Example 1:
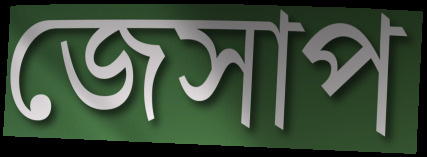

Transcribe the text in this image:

জেসাপ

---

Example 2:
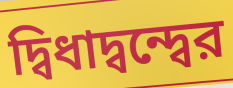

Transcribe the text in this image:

দ্বিধাদ্বন্দ্বের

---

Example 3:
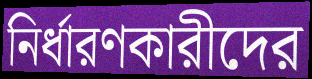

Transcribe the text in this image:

নির্ধারণকারীদের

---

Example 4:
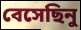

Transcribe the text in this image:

বেসেছিনু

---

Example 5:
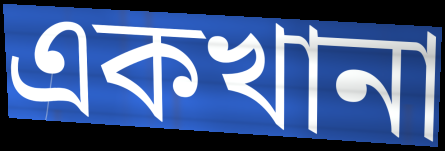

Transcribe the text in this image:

একখানা